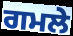
ਗਮਲੇ